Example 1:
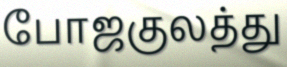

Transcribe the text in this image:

போஜகுலத்து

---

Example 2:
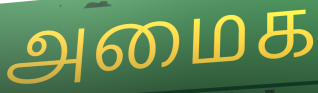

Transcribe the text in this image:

அமைக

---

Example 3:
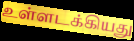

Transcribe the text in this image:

உள்ளடக்கியது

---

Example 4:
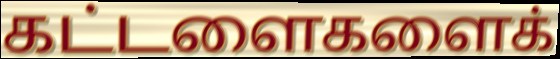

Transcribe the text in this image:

கட்டளைகளைக்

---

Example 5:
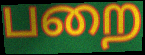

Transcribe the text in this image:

பறை